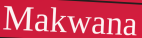
Makwana